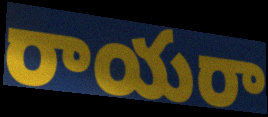
రాయరా